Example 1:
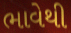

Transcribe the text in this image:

ભાવેથી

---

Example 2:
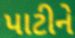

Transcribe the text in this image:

પાટીને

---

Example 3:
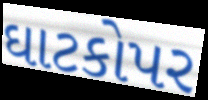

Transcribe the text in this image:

ઘાટકોપર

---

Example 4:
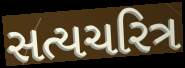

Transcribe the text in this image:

સત્યચરિત્ર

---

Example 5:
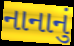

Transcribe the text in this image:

નાનાનું